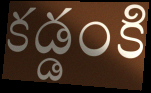
కడ్డంకి